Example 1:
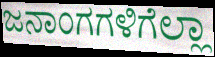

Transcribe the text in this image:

ಜನಾಂಗಗಳಿಗೆಲ್ಲಾ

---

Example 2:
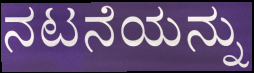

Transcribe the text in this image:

ನಟನೆಯನ್ನು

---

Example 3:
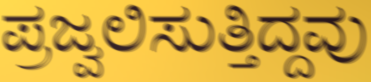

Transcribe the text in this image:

ಪ್ರಜ್ವಲಿಸುತ್ತಿದ್ದವು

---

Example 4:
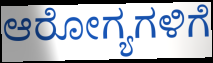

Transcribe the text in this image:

ಆರೋಗ್ಯಗಳಿಗೆ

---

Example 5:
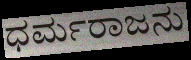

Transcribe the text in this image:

ಧರ್ಮರಾಜನು